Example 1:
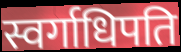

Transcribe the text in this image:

स्वर्गाधिपति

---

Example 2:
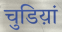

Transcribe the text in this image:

चुडिय़ां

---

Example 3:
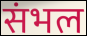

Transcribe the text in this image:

संभल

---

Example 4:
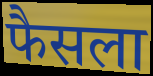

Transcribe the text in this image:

फैसला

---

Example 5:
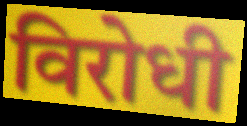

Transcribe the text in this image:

विरोधी